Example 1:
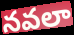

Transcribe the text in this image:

నవలా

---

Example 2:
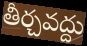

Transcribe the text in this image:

తీర్చవద్దు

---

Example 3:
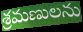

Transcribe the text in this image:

శ్రమణులను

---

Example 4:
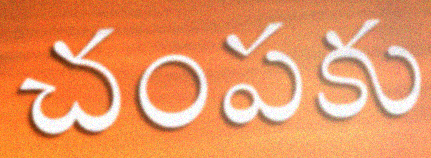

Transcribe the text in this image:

చంపకు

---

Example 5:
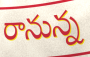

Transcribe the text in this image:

రానున్న